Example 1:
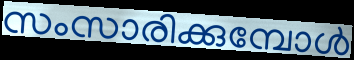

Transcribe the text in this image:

സംസാരിക്കുമ്പോൾ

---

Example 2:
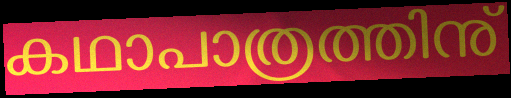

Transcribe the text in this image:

കഥാപാത്രത്തിനു്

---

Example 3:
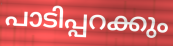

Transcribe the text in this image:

പാടിപ്പറക്കും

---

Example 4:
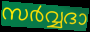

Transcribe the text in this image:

സർവ്വദാ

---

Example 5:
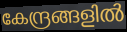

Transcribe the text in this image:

കേന്ദ്രങ്ങളിൽ